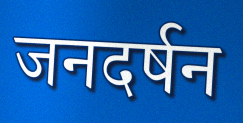
जनदर्षन